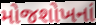
મોજશોખનાં